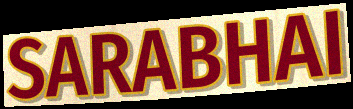
SARABHAI